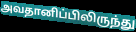
அவதானிப்பிலிருந்து